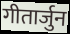
गीतार्जुन